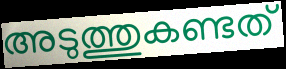
അടുത്തുകണ്ടത്